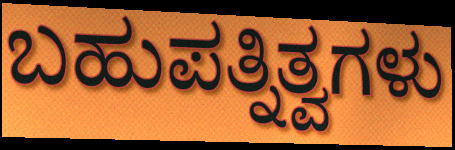
ಬಹುಪತ್ನಿತ್ವಗಳು